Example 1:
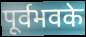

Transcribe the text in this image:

पूर्वभवके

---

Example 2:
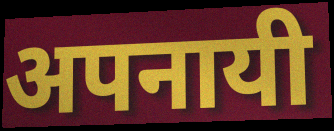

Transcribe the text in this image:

अपनायी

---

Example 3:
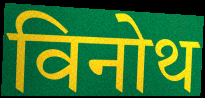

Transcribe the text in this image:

विनोथ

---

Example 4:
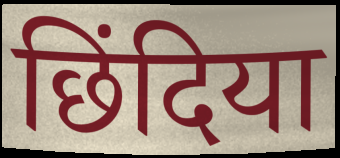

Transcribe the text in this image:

छिंदिया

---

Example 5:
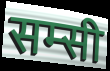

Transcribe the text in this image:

सम्सी